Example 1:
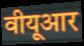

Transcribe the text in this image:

वीयूआर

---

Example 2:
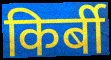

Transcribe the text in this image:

किर्बी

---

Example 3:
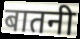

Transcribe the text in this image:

बातनी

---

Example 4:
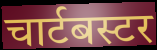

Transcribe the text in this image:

चार्टबस्टर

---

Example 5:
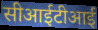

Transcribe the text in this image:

सीआईटीआई